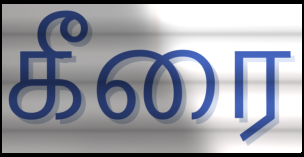
கீரை